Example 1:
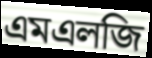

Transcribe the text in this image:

এমএলজি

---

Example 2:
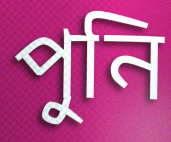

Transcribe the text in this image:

পুনি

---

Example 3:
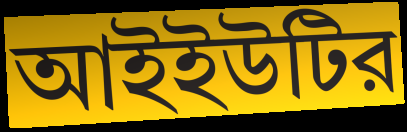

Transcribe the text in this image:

আইইউটির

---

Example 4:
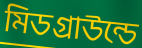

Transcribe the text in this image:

মিডগ্রাউন্ডে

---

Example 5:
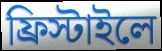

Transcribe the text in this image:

ফ্রিস্টাইলে